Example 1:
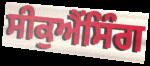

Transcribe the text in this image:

ਸੀਕੁਐਂਸਿੰਗ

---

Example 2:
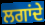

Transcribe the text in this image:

ਲਗਾਂਦੇ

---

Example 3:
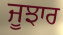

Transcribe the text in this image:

ਜੂਝਾਰ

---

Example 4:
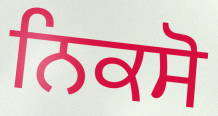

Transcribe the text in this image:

ਨਿਕਸੋ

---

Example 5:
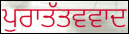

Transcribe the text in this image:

ਪੁਰਾਤੱਤਵਵਾਦ